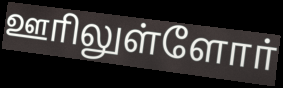
ஊரிலுள்ளோர்